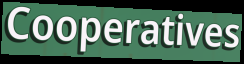
Cooperatives